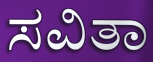
ಸವಿತಾ